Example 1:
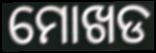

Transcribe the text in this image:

ମୋଖଡ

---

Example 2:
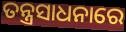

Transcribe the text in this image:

ତନ୍ତ୍ରସାଧନାରେ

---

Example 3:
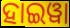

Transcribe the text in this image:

ହାଇୱା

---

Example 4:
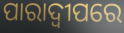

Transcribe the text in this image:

ପାରାଦ୍ବୀପରେ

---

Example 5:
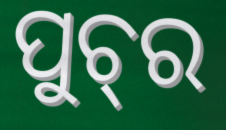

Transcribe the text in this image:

ପୁଚ୍‍ର